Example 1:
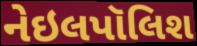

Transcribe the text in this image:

નેઇલપૉલિશ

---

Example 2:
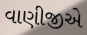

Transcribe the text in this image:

વાણીજીએ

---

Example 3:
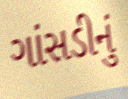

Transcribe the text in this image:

ગાંસડીનું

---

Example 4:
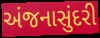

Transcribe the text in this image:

અંજનાસુંદરી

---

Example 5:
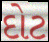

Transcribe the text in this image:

દોટ